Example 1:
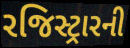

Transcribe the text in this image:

રજિસ્ટ્રારની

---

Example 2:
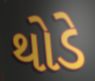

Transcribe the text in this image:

થોડે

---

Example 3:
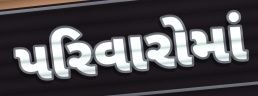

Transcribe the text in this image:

પરિવારોમાં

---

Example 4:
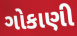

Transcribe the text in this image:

ગોકાણી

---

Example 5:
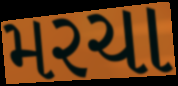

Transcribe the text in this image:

મરચા